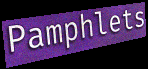
Pamphlets